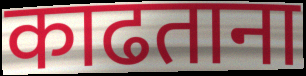
काढताना